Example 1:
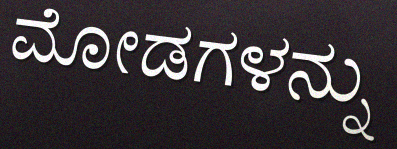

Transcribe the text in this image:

ಮೋಡಗಳನ್ನು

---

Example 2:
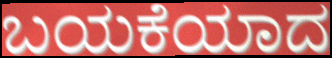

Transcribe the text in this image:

ಬಯಕೆಯಾದ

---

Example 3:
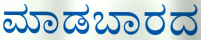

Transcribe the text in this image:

ಮಾಡಬಾರದ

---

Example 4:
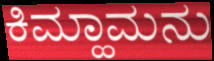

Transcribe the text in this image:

ಕಿಮ್ಹಾಮನು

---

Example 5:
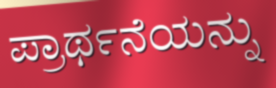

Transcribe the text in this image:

ಪ್ರಾರ್ಥನೆಯನ್ನು